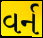
વર્ન